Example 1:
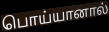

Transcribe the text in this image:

பொய்யானால்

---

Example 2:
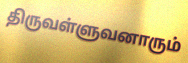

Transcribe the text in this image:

திருவள்ளுவனாரும்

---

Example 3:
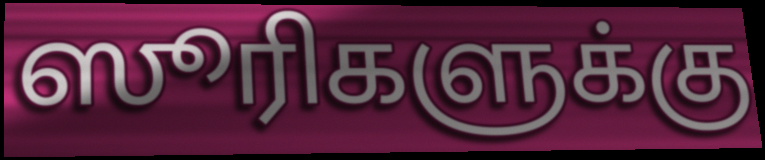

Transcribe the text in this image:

ஸூரிகளுக்கு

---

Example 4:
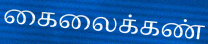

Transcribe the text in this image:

கைலைக்கண்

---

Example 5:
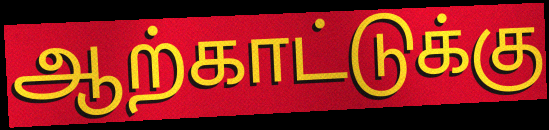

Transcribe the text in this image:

ஆற்காட்டுக்கு